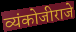
व्यंकोजीराजे